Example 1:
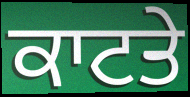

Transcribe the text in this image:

ਕਾਟਤੇ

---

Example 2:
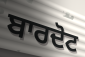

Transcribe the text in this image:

ਬਾਰਦੋਟ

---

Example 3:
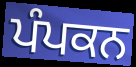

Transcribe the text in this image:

ਪੰਪਕਨ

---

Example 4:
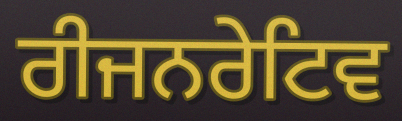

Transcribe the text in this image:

ਰੀਜਨਰੇਟਿਵ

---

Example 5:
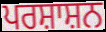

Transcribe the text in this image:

ਪਰਸ਼ਾਸ਼ਨ